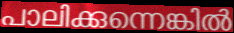
പാലിക്കുന്നെങ്കിൽ